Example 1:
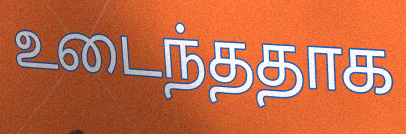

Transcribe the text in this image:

உடைந்ததாக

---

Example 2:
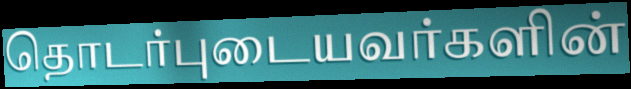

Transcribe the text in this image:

தொடர்புடையவர்களின்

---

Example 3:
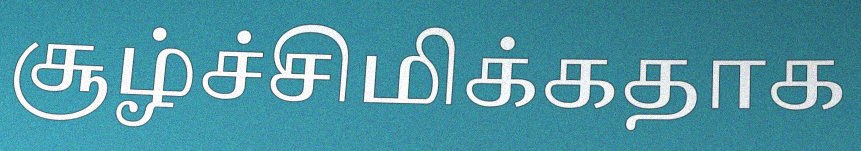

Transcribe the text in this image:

சூழ்ச்சிமிக்கதாக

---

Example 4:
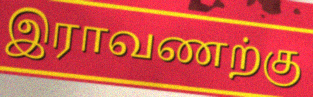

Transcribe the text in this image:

இராவணற்கு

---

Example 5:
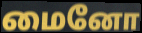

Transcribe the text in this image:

மைனோ